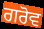
ਗਰੋਵ